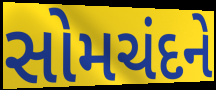
સોમચંદને